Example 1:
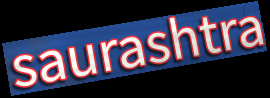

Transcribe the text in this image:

saurashtra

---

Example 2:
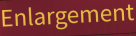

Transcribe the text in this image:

Enlargement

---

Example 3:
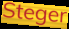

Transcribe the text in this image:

Steger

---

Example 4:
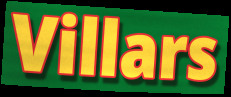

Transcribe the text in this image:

Villars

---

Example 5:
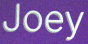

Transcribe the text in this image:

Joey